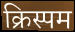
क्रिस्पम